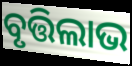
ବୃତ୍ତିଲାଭ